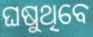
ଘଷୁଥିବେ